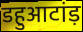
डहुआटांड़